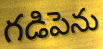
గడిపెను